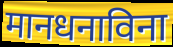
मानधनाविना